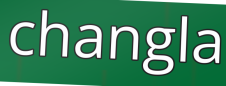
changla